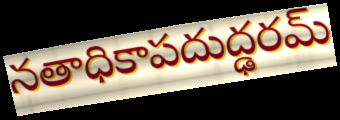
నతాధికాపదుద్ఢరమ్